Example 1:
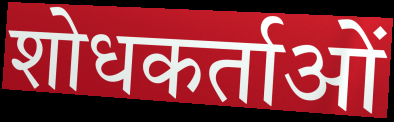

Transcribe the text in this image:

शोधकर्ताओं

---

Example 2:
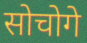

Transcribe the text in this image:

सोचोगे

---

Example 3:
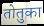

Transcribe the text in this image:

तोतुका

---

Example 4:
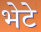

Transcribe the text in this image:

भेटे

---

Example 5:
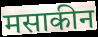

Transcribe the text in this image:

मसाकीन